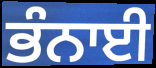
ਭੰਨਾਈ